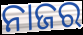
ନାଜର